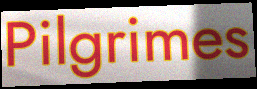
Pilgrimes